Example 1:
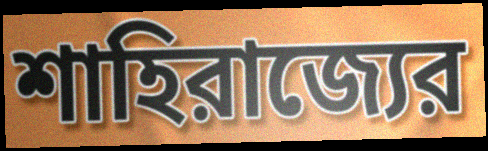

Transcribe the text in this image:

শাহিরাজ্যের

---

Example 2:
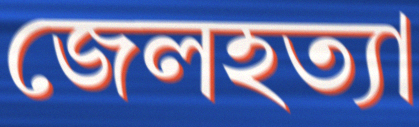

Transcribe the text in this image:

জেলহত্যা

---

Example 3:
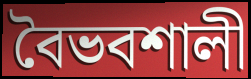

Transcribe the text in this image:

বৈভবশালী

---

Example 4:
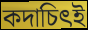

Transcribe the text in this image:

কদাচিৎই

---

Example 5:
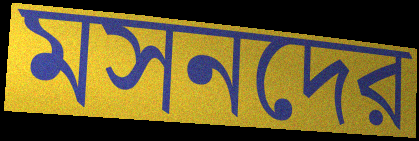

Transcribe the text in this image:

মসনদের